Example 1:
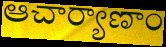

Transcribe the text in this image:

ఆచార్యాణాం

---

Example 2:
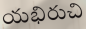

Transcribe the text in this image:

యభిరుచి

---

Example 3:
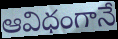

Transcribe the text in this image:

ఆవిధంగానే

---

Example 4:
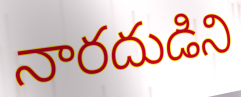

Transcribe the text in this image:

నారదుడిని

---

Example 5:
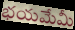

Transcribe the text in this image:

భయమేమీ